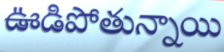
ఊడిపోతున్నాయి